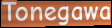
Tonegawa